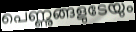
പെണ്ണുങ്ങളുടേയും